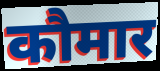
कौमार